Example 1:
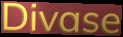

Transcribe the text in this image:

Divase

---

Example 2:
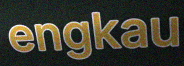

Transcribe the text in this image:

engkau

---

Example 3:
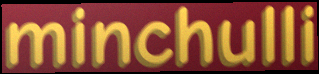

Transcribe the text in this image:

minchulli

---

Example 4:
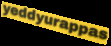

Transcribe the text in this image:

yeddyurappas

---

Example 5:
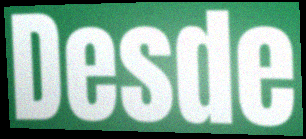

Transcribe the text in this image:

Desde